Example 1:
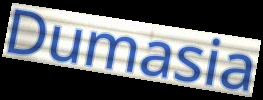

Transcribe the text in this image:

Dumasia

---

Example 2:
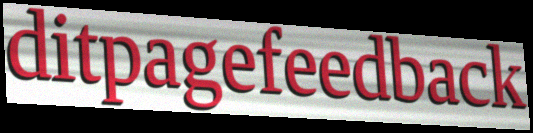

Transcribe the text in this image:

ditpagefeedback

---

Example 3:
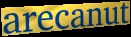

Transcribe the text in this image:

arecanut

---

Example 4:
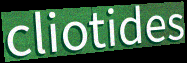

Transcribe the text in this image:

cliotides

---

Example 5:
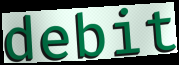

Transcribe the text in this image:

debit